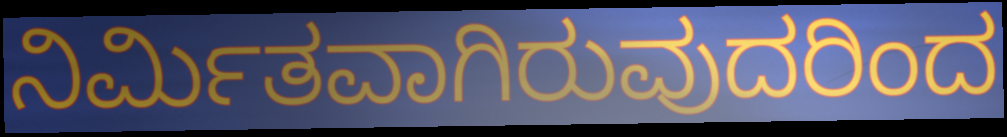
ನಿರ್ಮಿತವಾಗಿರುವುದರಿಂದ